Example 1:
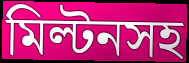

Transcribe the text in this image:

মিল্টনসহ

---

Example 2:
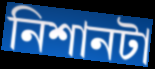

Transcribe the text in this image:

নিশানটা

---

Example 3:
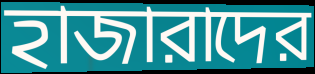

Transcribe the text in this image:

হাজারাদের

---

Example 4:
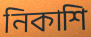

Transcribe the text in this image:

নিকাশি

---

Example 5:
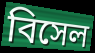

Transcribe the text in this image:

বিসেল